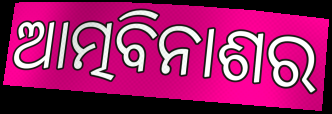
ଆତ୍ମବିନାଶର